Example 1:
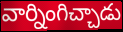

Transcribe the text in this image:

వార్నింగిచ్చాడు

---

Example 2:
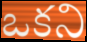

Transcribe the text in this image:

ఒకని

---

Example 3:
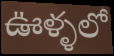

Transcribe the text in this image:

ఊళ్ళలో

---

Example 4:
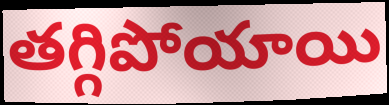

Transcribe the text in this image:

తగ్గిపోయాయి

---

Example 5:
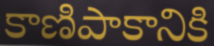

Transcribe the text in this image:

కాణిపాకానికి